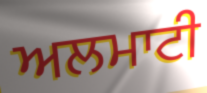
ਅਲਮਾਟੀ